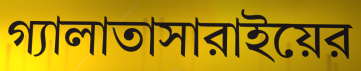
গ্যালাতাসারাইয়ের